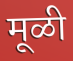
मूळी